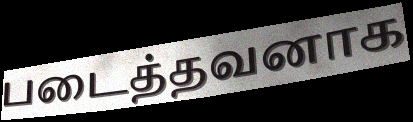
படைத்தவனாக